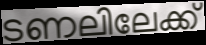
ടണലിലേക്ക്